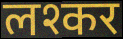
लश्कर